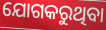
ଯୋଗକରୁଥିବା